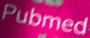
Pubmed